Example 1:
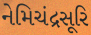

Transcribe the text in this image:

નેમિચંદ્રસૂરિ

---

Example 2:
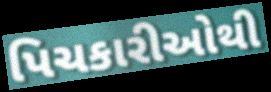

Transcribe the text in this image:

પિચકારીઓથી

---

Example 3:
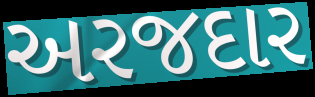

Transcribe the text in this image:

અરજદાર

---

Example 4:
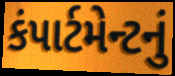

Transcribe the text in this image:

કંપાર્ટમેન્ટનું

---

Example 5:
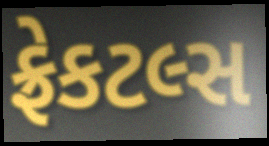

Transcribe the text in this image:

ફ્રેકટલ્સ